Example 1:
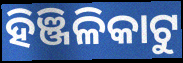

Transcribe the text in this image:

ହିଞ୍ଜିଳିକାଟୁ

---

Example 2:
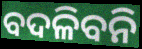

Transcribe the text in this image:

ବଦଳିବନି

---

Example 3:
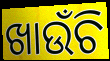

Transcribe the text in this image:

ଖାଉଁଚି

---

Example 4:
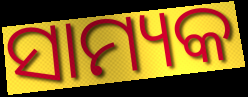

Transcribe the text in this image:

ସାମ୍ୟକ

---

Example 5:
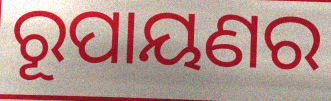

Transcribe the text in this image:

ରୂପାୟଣର